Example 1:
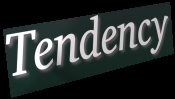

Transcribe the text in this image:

Tendency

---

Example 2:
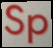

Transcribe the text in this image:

Sp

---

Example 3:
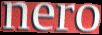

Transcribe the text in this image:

nero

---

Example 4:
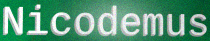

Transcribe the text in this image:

Nicodemus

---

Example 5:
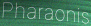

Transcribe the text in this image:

Pharaonis